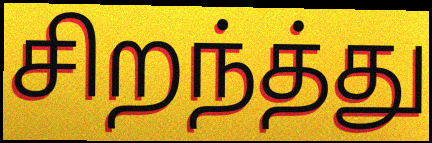
சிறந்த்து